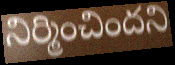
నిర్మించిందని